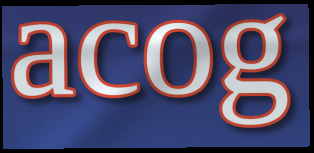
acog